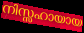
നിസ്സഹായായ